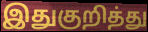
இதுகுறித்து